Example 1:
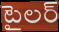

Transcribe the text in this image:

టైలర్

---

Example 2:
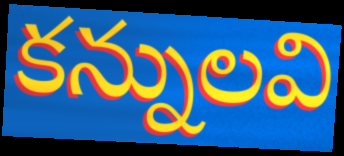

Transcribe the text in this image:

కన్నులవి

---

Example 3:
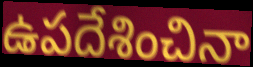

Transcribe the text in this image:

ఉపదేశించినా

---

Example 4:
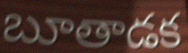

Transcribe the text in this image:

బూతాడక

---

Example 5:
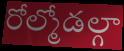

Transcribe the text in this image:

రోల్మోడల్గా